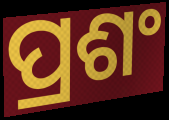
ପ୍ରଶଂ